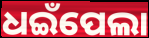
ଧଇଁପେଲା